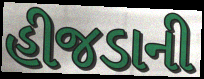
હીજડાની